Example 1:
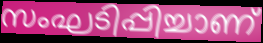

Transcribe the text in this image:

സംഘടിപ്പിച്ചാണ്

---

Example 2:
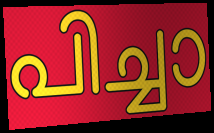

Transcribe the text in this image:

പിച്ചാ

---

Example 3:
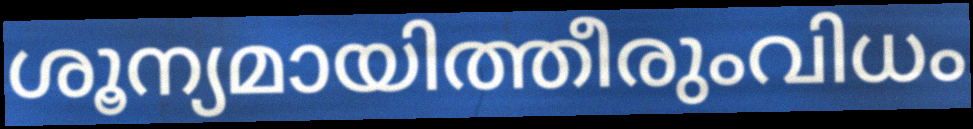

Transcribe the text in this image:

ശൂന്യമായിത്തീരുംവിധം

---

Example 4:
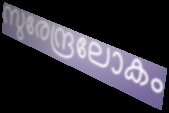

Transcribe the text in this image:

സുരേന്ദ്രലോകം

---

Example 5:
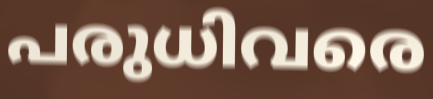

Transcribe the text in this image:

പരുധിവരെ